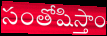
సంతోషిస్తాం